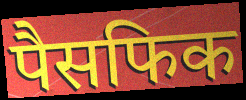
पैसफिक